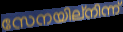
സേനയില്നിന്ന്